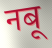
नबू